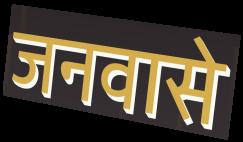
जनवासे